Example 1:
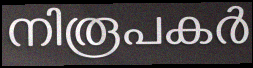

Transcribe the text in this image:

നിരൂപകർ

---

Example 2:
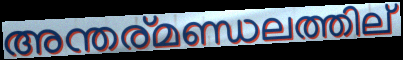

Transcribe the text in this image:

അന്തര്മണ്ഡലത്തില്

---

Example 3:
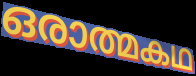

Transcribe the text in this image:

ഒരാത്മകഥ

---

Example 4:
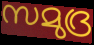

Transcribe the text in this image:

സമുദ്ര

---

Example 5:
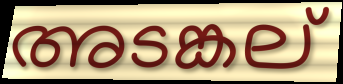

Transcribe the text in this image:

അടങ്കല്